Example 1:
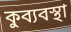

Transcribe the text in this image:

কুব্যবস্থা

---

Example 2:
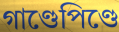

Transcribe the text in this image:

গাণ্ডেপিণ্ডে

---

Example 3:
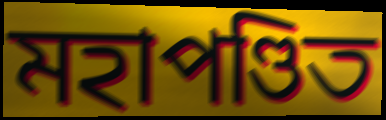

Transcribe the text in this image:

মহাপণ্ডিত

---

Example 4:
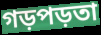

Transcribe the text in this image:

গড়পড়তা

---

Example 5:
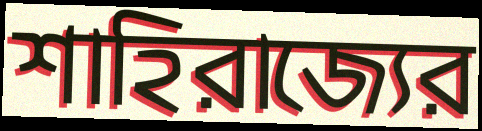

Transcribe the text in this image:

শাহিরাজ্যের